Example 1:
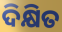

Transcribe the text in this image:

ଦିକ୍ଷିତ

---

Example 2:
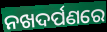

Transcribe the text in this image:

ନଖଦର୍ପଣରେ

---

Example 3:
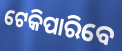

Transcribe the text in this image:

ଟେକିପାରିବେ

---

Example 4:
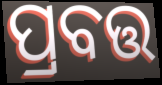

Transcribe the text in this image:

ପ୍ରବତ୍ତ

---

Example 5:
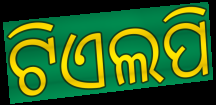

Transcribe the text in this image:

ଟିଏଲପି